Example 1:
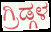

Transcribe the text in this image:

ಗ್ರಿಡ್ಗಳ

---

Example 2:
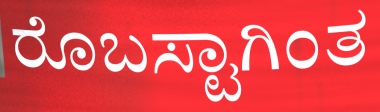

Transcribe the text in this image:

ರೊಬಸ್ಟಾಗಿಂತ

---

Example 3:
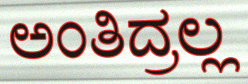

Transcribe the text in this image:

ಅಂತಿದ್ರಲ್ಲ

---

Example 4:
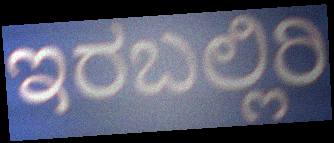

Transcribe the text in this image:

ಇರಬಲ್ಲಿರಿ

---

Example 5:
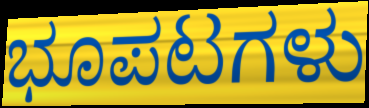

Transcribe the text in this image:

ಭೂಪಟಗಳು